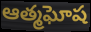
ఆత్మఘోష